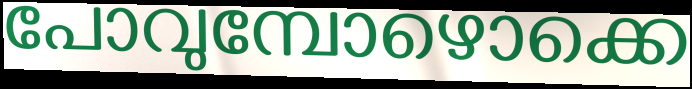
പോവുമ്പോഴൊക്കെ